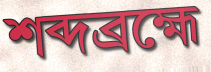
শব্দব্রহ্মে